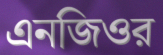
এনজিওর